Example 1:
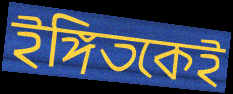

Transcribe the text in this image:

ইঙ্গিতকেই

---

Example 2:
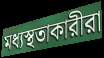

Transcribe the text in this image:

মধ্যস্থতাকারীরা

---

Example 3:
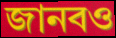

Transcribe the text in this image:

জানবও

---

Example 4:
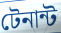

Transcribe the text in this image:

টেনান্ট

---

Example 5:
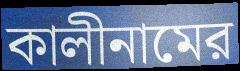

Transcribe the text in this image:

কালীনামের